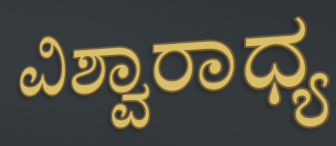
ವಿಶ್ವಾರಾಧ್ಯ